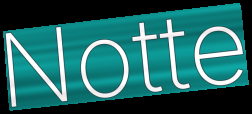
Notte